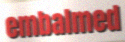
embalmed